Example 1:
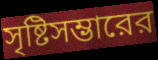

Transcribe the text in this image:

সৃষ্টিসম্ভারের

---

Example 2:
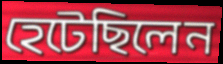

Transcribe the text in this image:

হেটেছিলেন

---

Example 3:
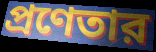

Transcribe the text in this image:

প্রণেতার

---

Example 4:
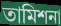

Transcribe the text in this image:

তামিশনা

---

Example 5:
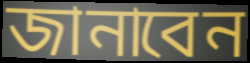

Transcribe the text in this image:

জানাবেন